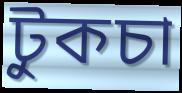
টুকচা